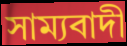
সাম্যবাদী